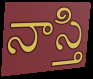
నాస్తి